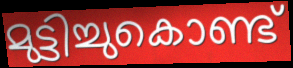
മുട്ടിച്ചുകൊണ്ട്